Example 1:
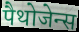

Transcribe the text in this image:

पैथोजेन्स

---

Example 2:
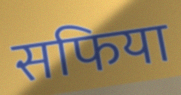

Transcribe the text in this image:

सफिया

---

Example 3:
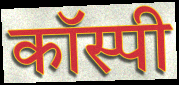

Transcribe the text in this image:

कॉस्पी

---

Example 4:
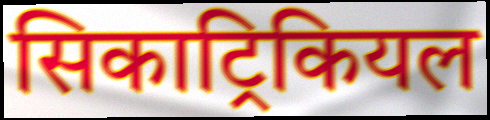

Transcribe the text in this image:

सिकाट्रिकियल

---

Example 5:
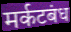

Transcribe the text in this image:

मर्कटबंध